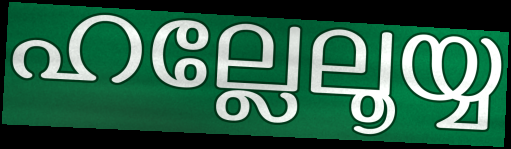
ഹല്ലേലൂയ്യ